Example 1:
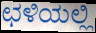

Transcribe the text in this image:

ಛಳಿಯಲ್ಲಿ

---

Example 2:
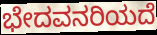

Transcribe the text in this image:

ಭೇದವನರಿಯದೆ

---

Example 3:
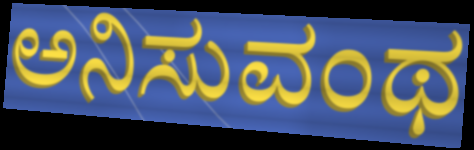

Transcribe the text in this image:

ಅನಿಸುವಂಥ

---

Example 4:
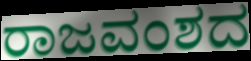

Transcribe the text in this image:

ರಾಜವಂಶದ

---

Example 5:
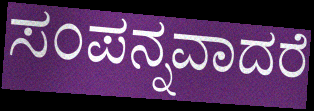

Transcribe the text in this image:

ಸಂಪನ್ನವಾದರೆ